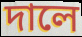
দালে